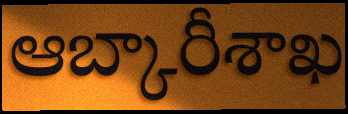
ఆబ్కారీశాఖ